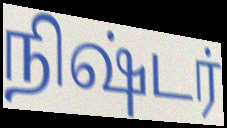
நிஷ்டர்